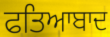
ਫਤਿਆਬਾਦ